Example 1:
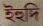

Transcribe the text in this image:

ইহুদি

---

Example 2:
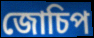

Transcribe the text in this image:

জোচিপ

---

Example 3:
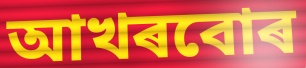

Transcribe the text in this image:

আখৰবোৰ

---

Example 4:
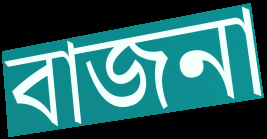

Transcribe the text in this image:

বাজনা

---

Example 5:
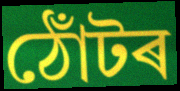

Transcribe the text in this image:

ঠোঁটৰ